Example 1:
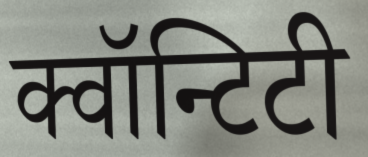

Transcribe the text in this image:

क्वॉन्टिटी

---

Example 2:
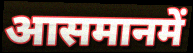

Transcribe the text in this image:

आसमानमें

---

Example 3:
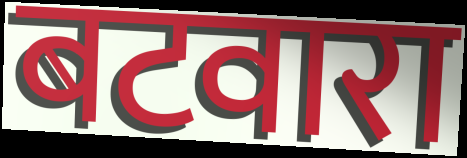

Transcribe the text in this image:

बटवारा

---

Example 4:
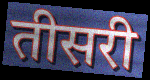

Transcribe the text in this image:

तीसरी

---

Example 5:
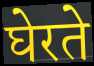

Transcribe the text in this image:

घेरते